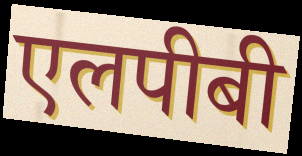
एलपीबी